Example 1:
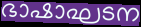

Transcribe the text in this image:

ഭാഷാഘടന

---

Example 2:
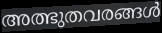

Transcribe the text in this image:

അത്ഭുതവരങ്ങൾ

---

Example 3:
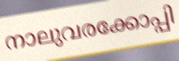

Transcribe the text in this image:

നാലുവരക്കോപ്പി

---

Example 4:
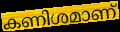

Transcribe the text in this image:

കണിശമാണ്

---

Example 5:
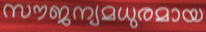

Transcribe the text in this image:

സൗജന്യമധുരമായ